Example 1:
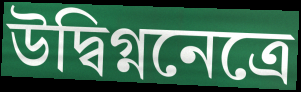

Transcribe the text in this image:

উদ্বিগ্ননেত্রে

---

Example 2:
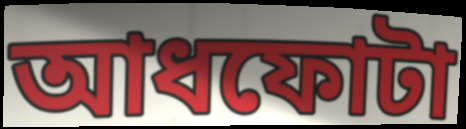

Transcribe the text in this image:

আধফোটা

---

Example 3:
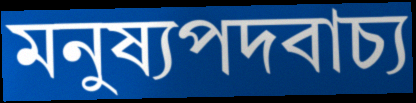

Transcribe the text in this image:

মনুষ্যপদবাচ্য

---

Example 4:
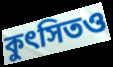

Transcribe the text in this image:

কুৎসিতও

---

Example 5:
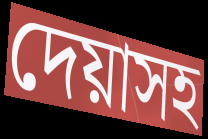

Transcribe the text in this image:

দেয়াসহ